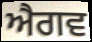
ਐਗਵ